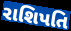
રાશિપતિ